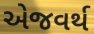
એજવર્થ